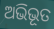
ଅଭିଭୂତ